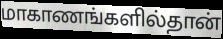
மாகாணங்களில்தான்